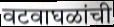
वटवाघळांची